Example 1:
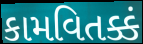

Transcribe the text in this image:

કામવિતક્કં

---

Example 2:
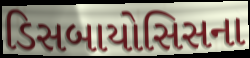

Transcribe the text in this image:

ડિસબાયોસિસના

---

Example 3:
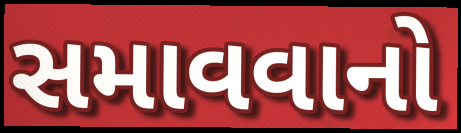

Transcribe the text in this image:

સમાવવાનો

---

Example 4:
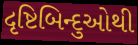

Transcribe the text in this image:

દૃષ્ટિબિન્દુઓથી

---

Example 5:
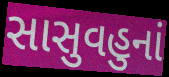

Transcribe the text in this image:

સાસુવહુનાં